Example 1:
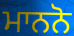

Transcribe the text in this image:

ਮਾਨਨੋ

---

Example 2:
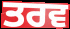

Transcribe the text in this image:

ਤਰਵ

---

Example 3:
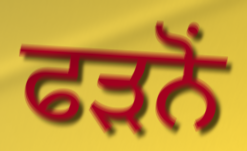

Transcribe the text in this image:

ਫੜਨੋਂ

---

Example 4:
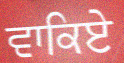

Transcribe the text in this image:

ਵਾਕਿਏ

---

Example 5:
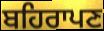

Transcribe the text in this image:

ਬਹਿਰਾਪਣ